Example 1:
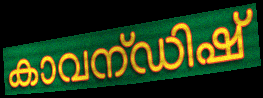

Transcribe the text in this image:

കാവന്ഡിഷ്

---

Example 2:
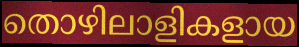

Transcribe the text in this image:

തൊഴിലാളികളായ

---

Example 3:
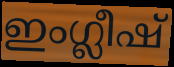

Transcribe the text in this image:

ഇംഗ്ലീഷ്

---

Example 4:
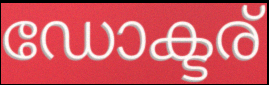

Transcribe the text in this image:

ഡോക്ടര്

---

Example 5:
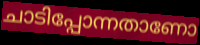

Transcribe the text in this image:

ചാടിപ്പോന്നതാണോ